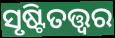
ସୃଷ୍ଟିତତ୍ତ୍ୱର